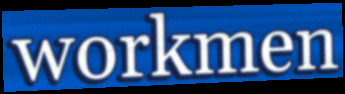
workmen